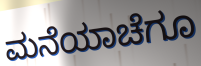
ಮನೆಯಾಚೆಗೂ